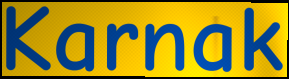
Karnak